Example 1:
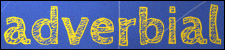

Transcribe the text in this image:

adverbial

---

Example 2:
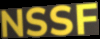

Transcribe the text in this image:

NSSF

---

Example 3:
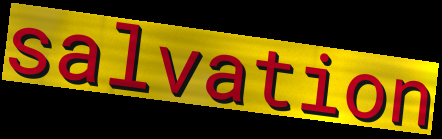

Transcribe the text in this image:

salvation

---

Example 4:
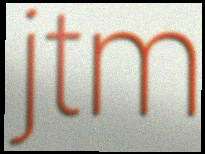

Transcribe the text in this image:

jtm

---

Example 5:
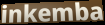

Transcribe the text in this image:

inkemba